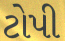
ટોપી